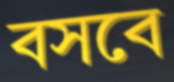
বসবে